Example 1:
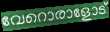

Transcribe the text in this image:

വേറൊരാളോട്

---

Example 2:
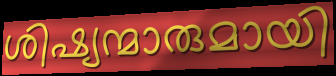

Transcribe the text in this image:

ശിഷ്യന്മാരുമായി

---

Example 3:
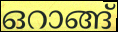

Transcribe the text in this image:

ഒറാങ്ങ്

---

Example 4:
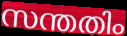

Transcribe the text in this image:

സന്തതിം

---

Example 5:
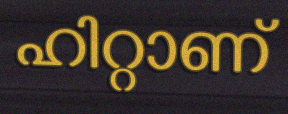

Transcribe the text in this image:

ഹിറ്റാണ്